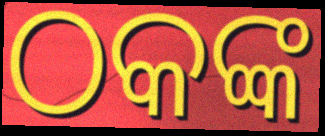
ଠକଙ୍କ